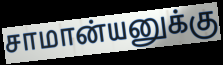
சாமான்யனுக்கு